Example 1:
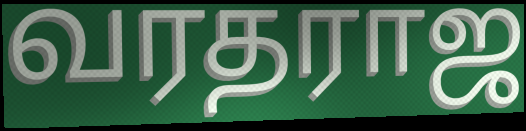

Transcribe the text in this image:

வரதராஜ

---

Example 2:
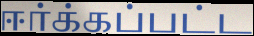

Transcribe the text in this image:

ஈர்க்கப்பட்ட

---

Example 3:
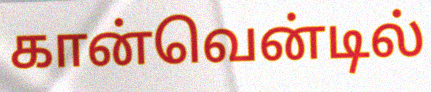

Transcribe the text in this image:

கான்வென்டில்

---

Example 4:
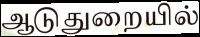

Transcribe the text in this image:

ஆடுதுறையில்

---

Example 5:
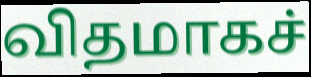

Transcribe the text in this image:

விதமாகச்